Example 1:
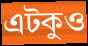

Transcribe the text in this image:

এটকুও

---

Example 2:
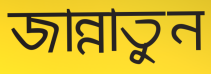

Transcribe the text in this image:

জান্নাতুন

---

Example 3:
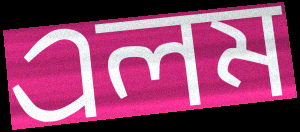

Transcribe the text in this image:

এলম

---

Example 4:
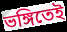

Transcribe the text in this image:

ভঙ্গিতেই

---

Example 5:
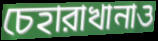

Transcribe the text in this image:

চেহারাখানাও